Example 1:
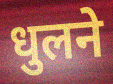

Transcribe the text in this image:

धुलने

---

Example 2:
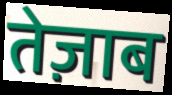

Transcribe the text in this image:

तेज़ाब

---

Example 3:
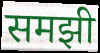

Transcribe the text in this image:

समझी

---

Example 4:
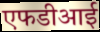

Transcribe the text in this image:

एफडीआई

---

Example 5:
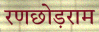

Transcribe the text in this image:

रणछोड़राम